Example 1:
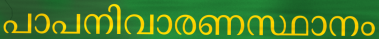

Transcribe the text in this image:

പാപനിവാരണസ്ഥാനം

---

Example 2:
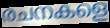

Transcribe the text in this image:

രചനകളെ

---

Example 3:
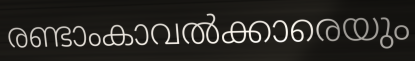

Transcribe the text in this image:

രണ്ടാംകാവൽക്കാരെയും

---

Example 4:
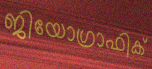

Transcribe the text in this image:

ജിയോഗ്രാഫിക്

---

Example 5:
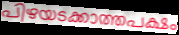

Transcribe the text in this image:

പിഴയടക്കാത്തപക്ഷം